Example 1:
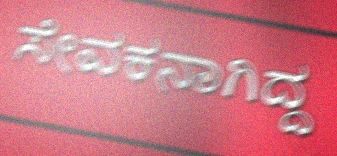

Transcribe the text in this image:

ಸೇವಕನಾಗಿದ್ದ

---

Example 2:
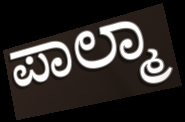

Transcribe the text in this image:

ಪಾಲ್ಮಾ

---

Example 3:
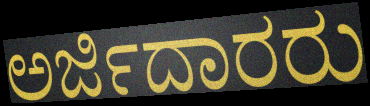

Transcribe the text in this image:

ಅರ್ಜಿದಾರರು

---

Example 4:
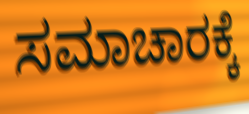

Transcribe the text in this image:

ಸಮಾಚಾರಕ್ಕೆ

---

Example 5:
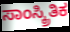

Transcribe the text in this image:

ಸಾಂಸ್ಕ್ರಿತಿಕ